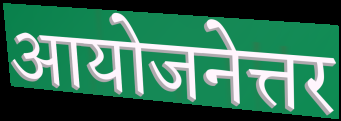
आयोजनेत्तर